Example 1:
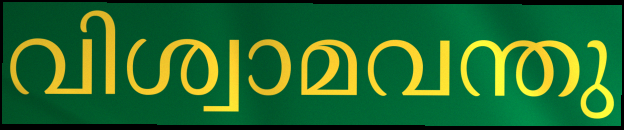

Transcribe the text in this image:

വിശ്വാമവന്തു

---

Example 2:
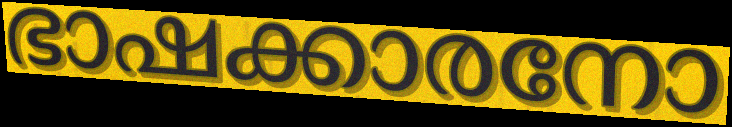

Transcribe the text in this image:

ഭാഷക്കാരനോ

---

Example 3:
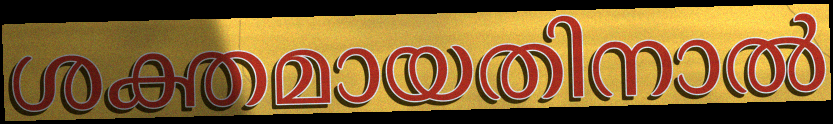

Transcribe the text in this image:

ശക്തമായതിനാൽ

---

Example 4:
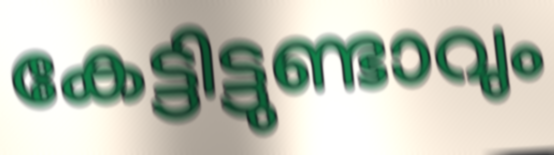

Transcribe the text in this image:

കേട്ടിട്ടുണ്ടാവും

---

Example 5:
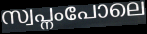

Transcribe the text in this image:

സ്വപ്നംപോലെ